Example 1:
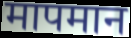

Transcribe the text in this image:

मापमान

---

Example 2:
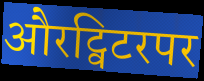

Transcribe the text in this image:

औरट्विटरपर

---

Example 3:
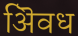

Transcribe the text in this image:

ऄिवध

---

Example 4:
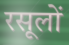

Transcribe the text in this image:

रसूलों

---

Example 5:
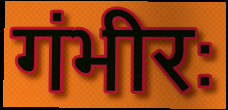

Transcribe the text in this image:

गंभीरः